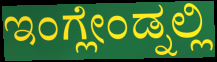
ಇಂಗ್ಲೇಂಡ್ನಲ್ಲಿ